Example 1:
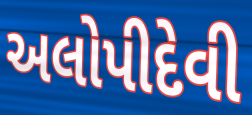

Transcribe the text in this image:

અલોપીદેવી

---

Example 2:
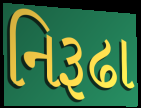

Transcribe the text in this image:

નિરૂઢા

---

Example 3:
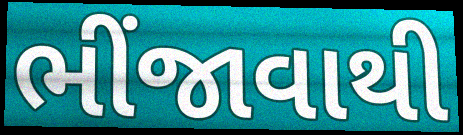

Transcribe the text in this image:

ભીંજાવાથી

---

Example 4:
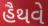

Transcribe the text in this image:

હૈથવે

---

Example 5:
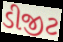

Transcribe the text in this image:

ડીજીટ